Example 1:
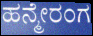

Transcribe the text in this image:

ಹನ್ಮೇರಂಗ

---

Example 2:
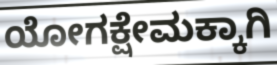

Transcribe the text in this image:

ಯೋಗಕ್ಷೇಮಕ್ಕಾಗಿ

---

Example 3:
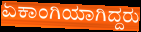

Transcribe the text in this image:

ಏಕಾಂಗಿಯಾಗಿದ್ದರು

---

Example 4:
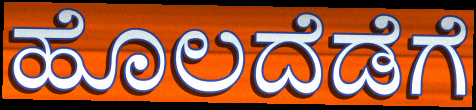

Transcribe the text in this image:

ಹೊಲದೆಡೆಗೆ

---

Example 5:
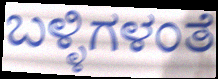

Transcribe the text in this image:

ಬಳ್ಳಿಗಳಂತೆ